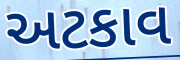
અટકાવ